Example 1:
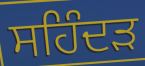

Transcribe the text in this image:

ਸਹਿੰਦੜ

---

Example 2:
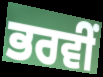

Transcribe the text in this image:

ਭਰਵੀਂ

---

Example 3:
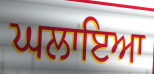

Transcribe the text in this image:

ਘਲਾਇਆ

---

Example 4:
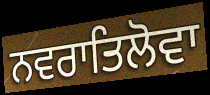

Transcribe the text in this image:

ਨਵਰਾਤਿਲੋਵਾ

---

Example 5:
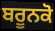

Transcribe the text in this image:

ਬਰੂਨਕੋ